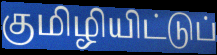
குமிழியிட்டுப்